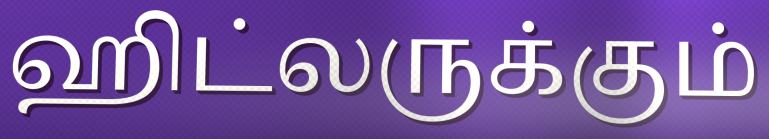
ஹிட்லருக்கும்